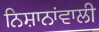
ਨਿਸ਼ਾਨਾਂਵਾਲੀ